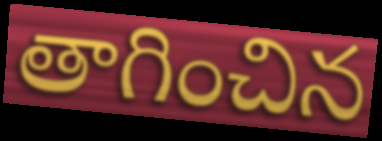
తాగించిన